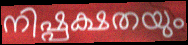
നിഷ്പക്ഷതയും